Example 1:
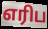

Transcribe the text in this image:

எரிப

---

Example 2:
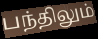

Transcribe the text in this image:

பந்திலும்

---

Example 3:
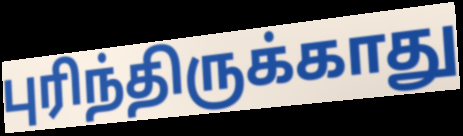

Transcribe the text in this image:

புரிந்திருக்காது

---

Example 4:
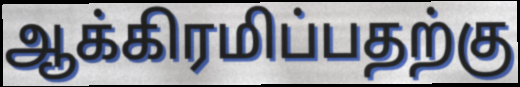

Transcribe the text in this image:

ஆக்கிரமிப்பதற்கு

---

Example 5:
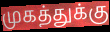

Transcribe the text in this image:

முகத்துக்கு